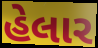
હેલાર